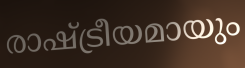
രാഷ്ട്രീയമായും